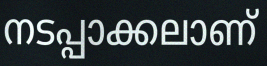
നടപ്പാക്കലാണ്